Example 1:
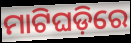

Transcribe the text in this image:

ମାଟିଘଡ଼ିରେ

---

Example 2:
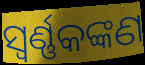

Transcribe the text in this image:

ସ୍ୱର୍ଣ୍ଣକଙ୍କଣ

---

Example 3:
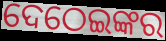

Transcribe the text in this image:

ଦେଠେଇଙ୍କର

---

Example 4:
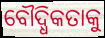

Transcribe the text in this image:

ବୌଦ୍ଧିକତାକୁ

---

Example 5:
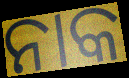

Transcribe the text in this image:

ନାକ